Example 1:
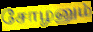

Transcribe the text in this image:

சோழனும்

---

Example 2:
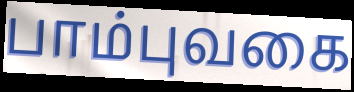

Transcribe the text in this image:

பாம்புவகை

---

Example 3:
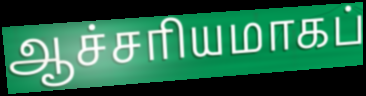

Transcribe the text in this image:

ஆச்சரியமாகப்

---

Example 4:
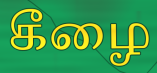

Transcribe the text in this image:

கீழை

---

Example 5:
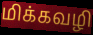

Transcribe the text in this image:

மிக்கவழி